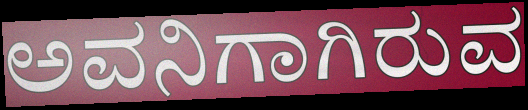
ಅವನಿಗಾಗಿರುವ